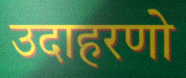
उदाहरणो